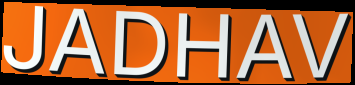
JADHAV